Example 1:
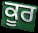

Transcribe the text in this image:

ਕੂਰ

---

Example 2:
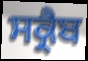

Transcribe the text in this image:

ਸਕ੍ਰੈਬ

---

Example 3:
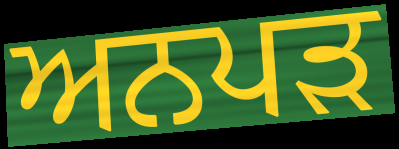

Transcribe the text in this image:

ਅਨਪੜ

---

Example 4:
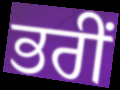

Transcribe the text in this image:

ਭਰੀਂ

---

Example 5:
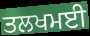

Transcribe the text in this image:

ਤਲਖਮਈ